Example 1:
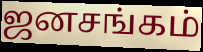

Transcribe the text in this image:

ஜனசங்கம்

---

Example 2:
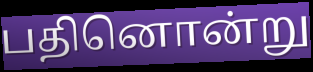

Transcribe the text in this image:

பதினொன்று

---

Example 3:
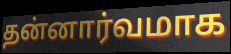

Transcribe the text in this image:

தன்னார்வமாக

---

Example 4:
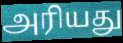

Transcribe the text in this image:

அரியது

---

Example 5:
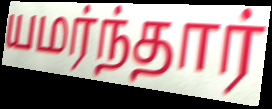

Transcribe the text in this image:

யமர்ந்தார்